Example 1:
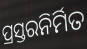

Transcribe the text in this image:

ପ୍ରସ୍ତରନିର୍ମିତ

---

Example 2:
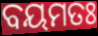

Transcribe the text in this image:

ବୟମତଃ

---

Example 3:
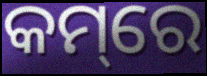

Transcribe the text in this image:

କମ୍‌ରେ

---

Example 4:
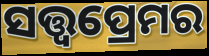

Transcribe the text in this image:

ସତ୍ତ୍ୱପ୍ରେମର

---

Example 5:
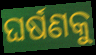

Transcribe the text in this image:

ଘର୍ଷଣକୁ